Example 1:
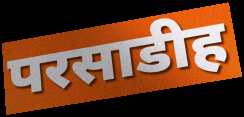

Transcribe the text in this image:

परसाडीह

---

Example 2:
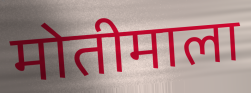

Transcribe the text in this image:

मोतीमाला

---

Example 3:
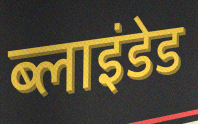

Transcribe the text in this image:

ब्लाइंडेड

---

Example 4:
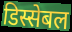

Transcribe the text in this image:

डिस्सेबल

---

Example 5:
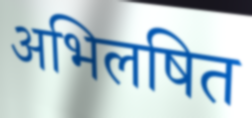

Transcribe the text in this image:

अभिलषित